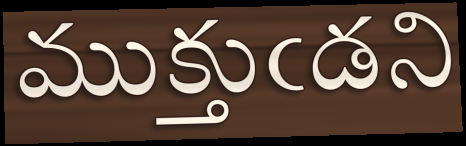
ముక్తుఁడని